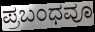
ಪ್ರಬಂಧವೂ